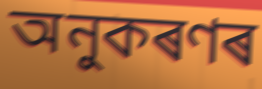
অনুকৰণৰ